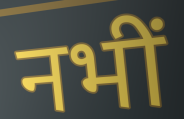
नभीं